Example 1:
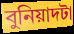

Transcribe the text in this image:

বুনিয়াদটা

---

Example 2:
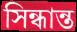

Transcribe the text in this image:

সিন্ধান্ত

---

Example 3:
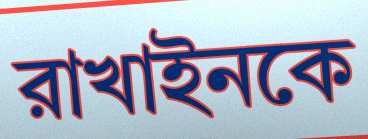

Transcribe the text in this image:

রাখাইনকে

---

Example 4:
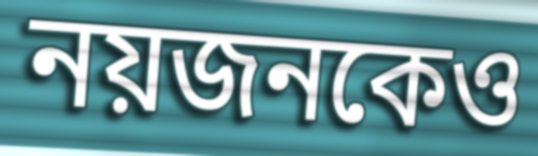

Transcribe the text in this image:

নয়জনকেও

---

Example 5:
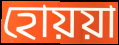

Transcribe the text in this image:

হোয়য়া